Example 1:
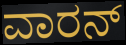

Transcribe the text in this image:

ವಾರನ್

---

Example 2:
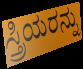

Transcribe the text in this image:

ಸ್ತ್ರಿಯರನ್ನು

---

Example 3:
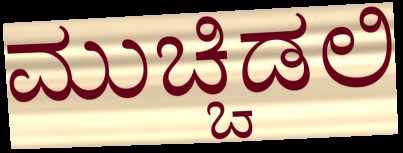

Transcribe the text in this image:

ಮುಚ್ಚಿಡಲಿ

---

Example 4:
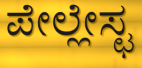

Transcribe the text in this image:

ಪೇಲ್ಲೇಸ್ಟ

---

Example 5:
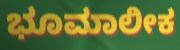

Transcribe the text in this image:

ಭೂಮಾಲೀಕ